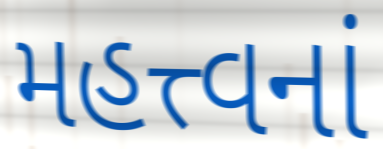
મહત્ત્વનાં